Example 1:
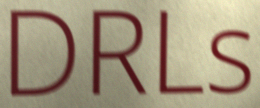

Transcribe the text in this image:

DRLs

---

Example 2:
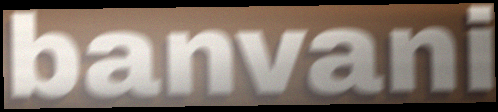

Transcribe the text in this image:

banvani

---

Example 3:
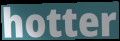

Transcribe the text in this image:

hotter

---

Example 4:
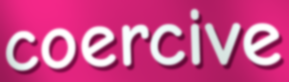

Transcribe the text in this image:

coercive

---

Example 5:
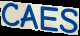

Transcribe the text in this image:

CAES